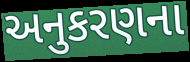
અનુકરણના